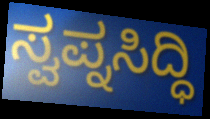
ಸ್ವಪ್ನಸಿದ್ಧಿ